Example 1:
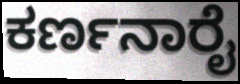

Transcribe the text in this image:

ಕರ್ಣನಾರೈ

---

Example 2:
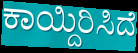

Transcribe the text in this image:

ಕಾಯ್ದಿರಿಸಿದೆ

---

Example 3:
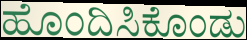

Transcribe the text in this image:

ಹೊಂದಿಸಿಕೊಂಡು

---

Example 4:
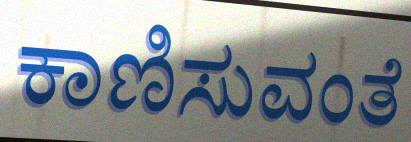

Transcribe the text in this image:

ಕಾಣಿಸುವಂತೆ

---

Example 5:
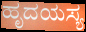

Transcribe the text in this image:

ಹೃದಯಸ್ಯ